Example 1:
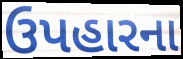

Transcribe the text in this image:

ઉપહારના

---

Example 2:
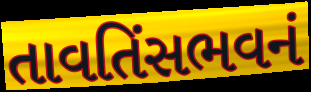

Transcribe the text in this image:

તાવતિંસભવનં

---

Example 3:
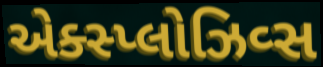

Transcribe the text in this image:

એક્સ્પ્લોઝિવ્સ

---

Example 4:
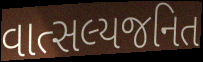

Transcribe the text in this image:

વાત્સલ્યજનિત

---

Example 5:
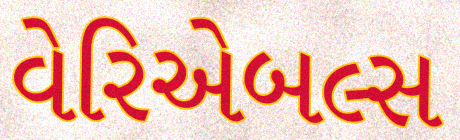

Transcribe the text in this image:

વેરિએબલ્સ